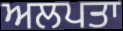
ਅਲਪਤਾ